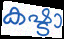
കഷ്ടാ